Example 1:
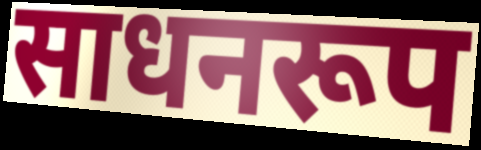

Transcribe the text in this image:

साधनरूप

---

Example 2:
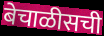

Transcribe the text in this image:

बेचाळीसची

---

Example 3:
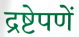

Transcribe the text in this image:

द्रष्टेपणें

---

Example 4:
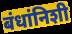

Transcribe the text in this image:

बंधांनिशी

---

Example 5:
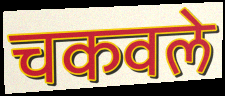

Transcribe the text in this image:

चकवले